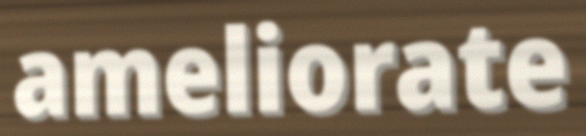
ameliorate